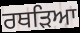
ਰਥੜਿਆ